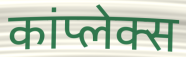
कांप्लेक्स